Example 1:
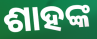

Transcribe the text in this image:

ଶାହଙ୍କ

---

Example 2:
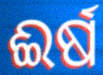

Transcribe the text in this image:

ଈର୍ଷ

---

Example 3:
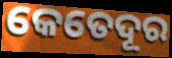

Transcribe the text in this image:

କେତେଦୂର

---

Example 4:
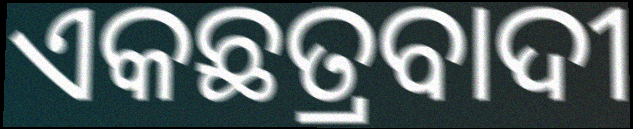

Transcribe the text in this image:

ଏକଛତ୍ରବାଦୀ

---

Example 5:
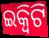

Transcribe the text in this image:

ଇକ୍ବିଟି